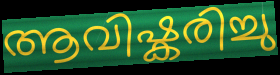
ആവിഷ്കരിച്ചു